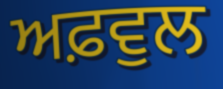
ਅਫ਼ਵੁਲ